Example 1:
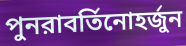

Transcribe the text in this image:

পুনরাবর্তিনোহর্জুন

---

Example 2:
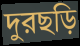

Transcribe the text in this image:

দুরছড়ি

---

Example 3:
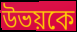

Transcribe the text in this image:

উভয়কে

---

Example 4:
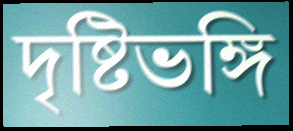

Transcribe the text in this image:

দৃষ্টিভঙ্গি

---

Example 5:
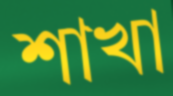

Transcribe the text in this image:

শাখা